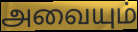
அவையும்